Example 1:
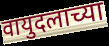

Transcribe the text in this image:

वायुदलाच्या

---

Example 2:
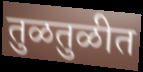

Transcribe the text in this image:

तुळतुळीत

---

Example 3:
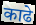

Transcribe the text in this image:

काढे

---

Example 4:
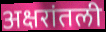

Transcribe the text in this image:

अक्षरांतली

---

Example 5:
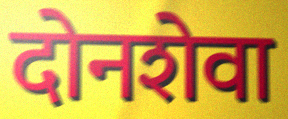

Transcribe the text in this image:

दोनशेवा